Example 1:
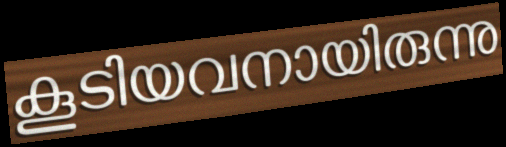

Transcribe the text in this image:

കൂടിയവനായിരുന്നു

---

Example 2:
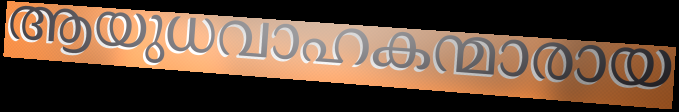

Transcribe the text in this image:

ആയുധവാഹകന്മാരായ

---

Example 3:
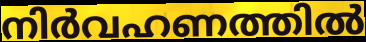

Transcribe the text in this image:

നിർവഹണത്തിൽ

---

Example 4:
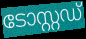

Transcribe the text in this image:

ടോസ്റ്റഡ്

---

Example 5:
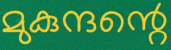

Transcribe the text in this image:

മുകുന്ദന്റെ